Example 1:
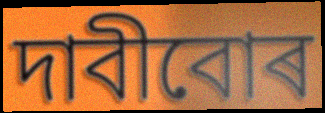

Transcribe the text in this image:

দাবীবোৰ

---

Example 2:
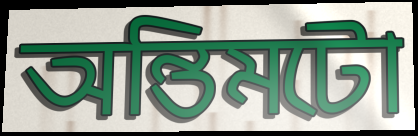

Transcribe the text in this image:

অন্তিমটো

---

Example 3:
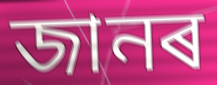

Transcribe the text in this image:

জানৰ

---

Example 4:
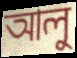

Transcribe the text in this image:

আলু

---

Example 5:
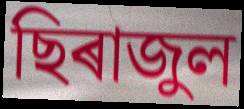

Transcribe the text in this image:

ছিৰাজুল